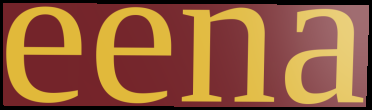
eena